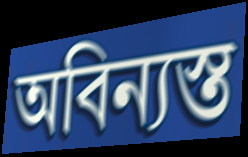
অবিন্যস্ত